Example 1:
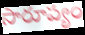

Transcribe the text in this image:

సారూప్యం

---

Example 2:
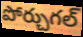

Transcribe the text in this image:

పోర్చుగల్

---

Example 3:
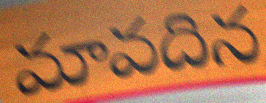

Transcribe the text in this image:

మావదిన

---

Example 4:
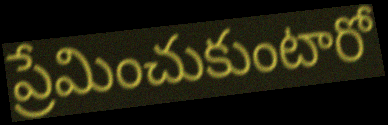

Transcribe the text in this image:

ప్రేమించుకుంటారో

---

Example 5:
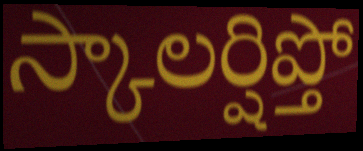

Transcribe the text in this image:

స్కాలర్షిప్తో